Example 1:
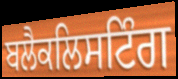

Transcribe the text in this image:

ਬਲੈਕਲਿਸਟਿੰਗ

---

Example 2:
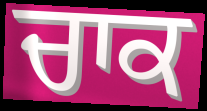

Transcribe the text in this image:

ਚਾਕ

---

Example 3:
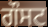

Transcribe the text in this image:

ਗੌਸਟ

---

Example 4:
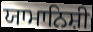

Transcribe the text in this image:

ਯਾਮਾਨਿਸ਼ੀ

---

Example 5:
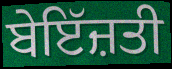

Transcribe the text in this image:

ਬੇਇੱਜ਼ਤੀ